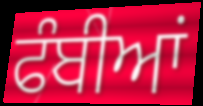
ਫੰਬੀਆਂ